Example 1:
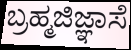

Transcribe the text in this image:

ಬ್ರಹ್ಮಜಿಜ್ಞಾಸೆ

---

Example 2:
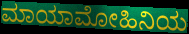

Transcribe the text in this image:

ಮಾಯಾಮೋಹಿನಿಯ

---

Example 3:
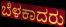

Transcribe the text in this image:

ಬೆಳಕಾದರು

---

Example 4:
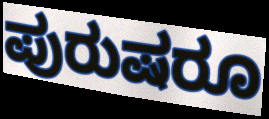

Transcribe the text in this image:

ಪುರುಷರೂ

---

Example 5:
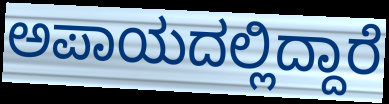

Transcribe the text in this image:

ಅಪಾಯದಲ್ಲಿದ್ದಾರೆ